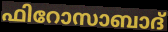
ഫിറോസാബാദ്